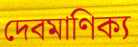
দেবমাণিক্য